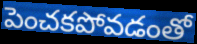
పెంచకపోవడంతో